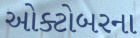
ઓક્ટોબરના